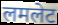
लमलेट